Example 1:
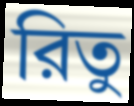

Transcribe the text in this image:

রিতু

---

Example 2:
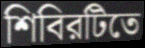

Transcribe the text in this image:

শিবিরটিতে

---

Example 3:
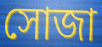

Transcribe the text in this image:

সোজা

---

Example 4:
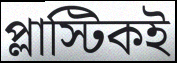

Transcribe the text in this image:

প্লাস্টিকই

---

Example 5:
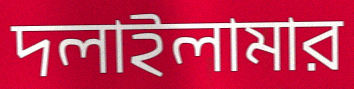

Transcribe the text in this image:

দলাইলামার